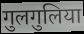
गुलगुलिया